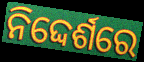
ନିଦ୍ଦେର୍ଶରେ